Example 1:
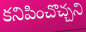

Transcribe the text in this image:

కనిపించొచ్చని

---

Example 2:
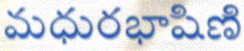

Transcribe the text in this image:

మధురభాషిణి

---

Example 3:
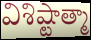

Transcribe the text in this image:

విశిష్టాత్మా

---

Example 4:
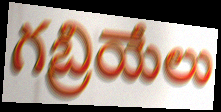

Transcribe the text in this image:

గబ్రియేలు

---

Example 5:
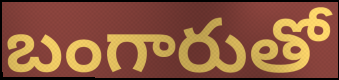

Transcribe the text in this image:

బంగారుతో